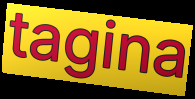
tagina